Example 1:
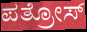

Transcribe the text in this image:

ಪತ್ರೋಸ್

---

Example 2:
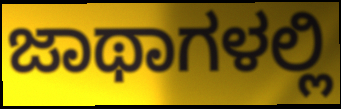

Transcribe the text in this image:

ಜಾಥಾಗಳಲ್ಲಿ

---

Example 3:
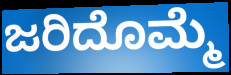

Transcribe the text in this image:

ಜರಿದೊಮ್ಮೆ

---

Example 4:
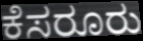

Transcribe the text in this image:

ಕೆಸರೂರು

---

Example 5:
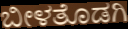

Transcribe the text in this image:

ಬೀಳತೊಡಗಿ